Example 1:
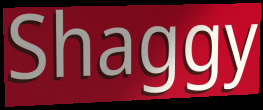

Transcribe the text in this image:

Shaggy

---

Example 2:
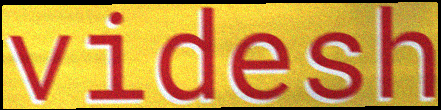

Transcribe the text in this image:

videsh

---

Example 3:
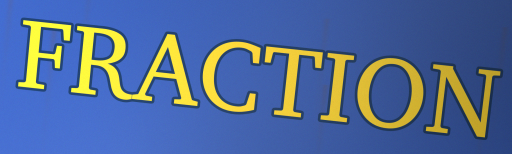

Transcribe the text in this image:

FRACTION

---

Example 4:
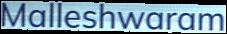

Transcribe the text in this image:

Malleshwaram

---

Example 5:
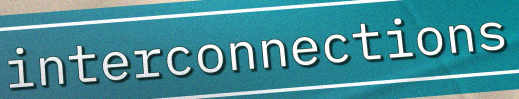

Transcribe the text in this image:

interconnections